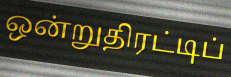
ஒன்றுதிரட்டிப்